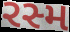
રસ્મ